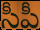
సీపీ